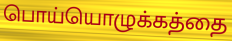
பொய்யொழுக்கத்தை